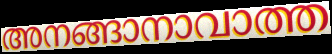
അനങ്ങാനാവാത്ത